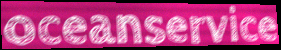
oceanservice